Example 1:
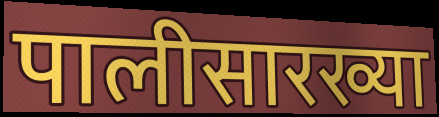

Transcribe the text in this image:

पालीसारख्या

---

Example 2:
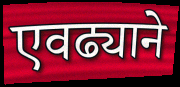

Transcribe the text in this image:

एवढ्याने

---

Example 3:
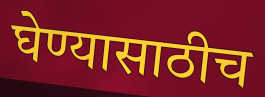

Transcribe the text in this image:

घेण्यासाठीच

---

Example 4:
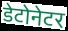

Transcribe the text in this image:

डेटोनेटर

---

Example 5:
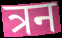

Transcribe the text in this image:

त्रन